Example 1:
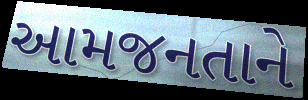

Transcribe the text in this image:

આમજનતાને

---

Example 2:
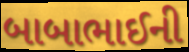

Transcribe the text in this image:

બાબાભાઈની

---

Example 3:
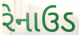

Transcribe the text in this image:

રેનાઉડ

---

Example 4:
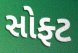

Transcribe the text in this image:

સોફ્ટ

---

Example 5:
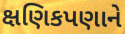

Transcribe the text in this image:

ક્ષણિકપણાને